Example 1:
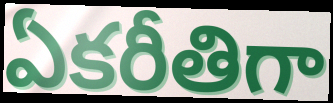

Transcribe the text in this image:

ఏకరీతిగా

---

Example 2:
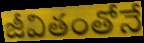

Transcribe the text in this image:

జీవితంతోనే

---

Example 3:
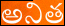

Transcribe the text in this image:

అనిత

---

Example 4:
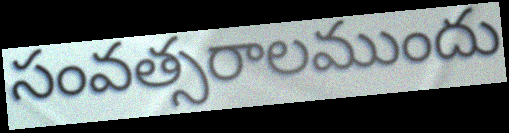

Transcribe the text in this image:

సంవత్సరాలముందు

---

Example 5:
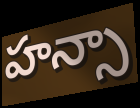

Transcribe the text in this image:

హన్సా